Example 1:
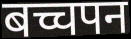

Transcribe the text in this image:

बच्चपन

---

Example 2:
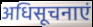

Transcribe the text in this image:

अधिसूचनाएं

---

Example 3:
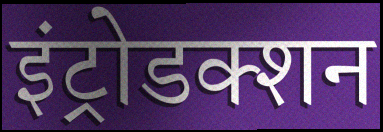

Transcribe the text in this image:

इंट्रोडक्शन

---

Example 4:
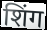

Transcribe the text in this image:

शिंग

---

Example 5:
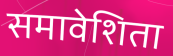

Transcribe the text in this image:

समावेशिता